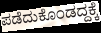
ಪಡೆದುಕೊಂಡದ್ದಕ್ಕೆ